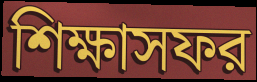
শিক্ষাসফর